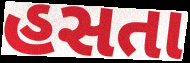
હસતા